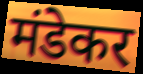
मंडेकर